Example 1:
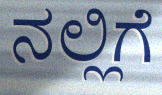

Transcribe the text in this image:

ನಲ್ಲಿಗೆ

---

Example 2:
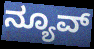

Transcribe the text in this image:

ನ್ಯೂವ್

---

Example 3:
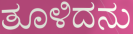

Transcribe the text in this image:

ತೂಳಿದನು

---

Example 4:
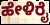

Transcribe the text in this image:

ಹೇಳಿರೈ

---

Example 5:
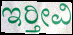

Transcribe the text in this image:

ಇರ‍್ತೀವಿ